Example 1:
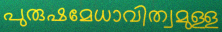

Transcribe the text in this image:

പുരുഷമേധാവിത്വമുള്ള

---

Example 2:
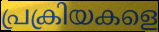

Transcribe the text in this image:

പ്രക്രിയകളെ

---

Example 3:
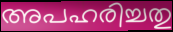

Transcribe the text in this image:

അപഹരിച്ചതു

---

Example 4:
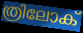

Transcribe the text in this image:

ത്രിലോക്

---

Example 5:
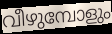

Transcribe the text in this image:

വീഴുമ്പോളും